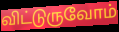
விட்டுருவோம்